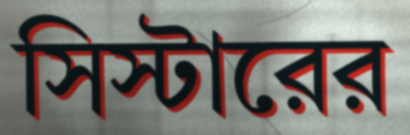
সিস্টারের